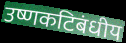
उष्णकटिबंधीय